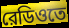
রেডিওতে